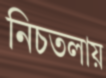
নিচতলায়